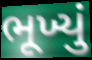
ભૂખ્યું